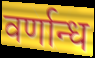
वर्णान्ध